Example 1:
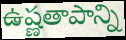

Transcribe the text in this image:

ఉష్ణతాపాన్ని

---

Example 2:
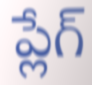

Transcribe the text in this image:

ప్లేగ్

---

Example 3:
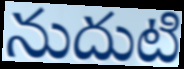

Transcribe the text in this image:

నుదుటి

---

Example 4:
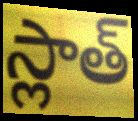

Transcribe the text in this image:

స్లాత్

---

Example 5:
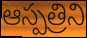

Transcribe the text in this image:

ఆస్పత్రిని